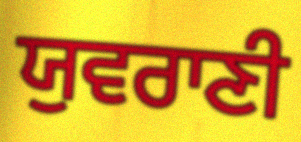
ਯੁਵਰਾਣੀ